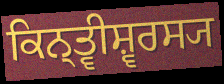
ਕਿਨ੍ਤ੍ਵੀਸ਼੍ਵਰਸ੍ਯ